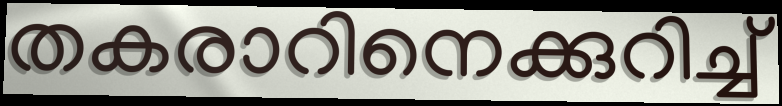
തകരാറിനെക്കുറിച്ച്